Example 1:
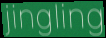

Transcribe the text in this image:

jingling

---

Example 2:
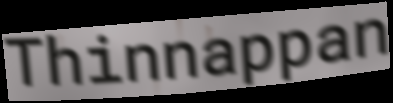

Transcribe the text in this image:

Thinnappan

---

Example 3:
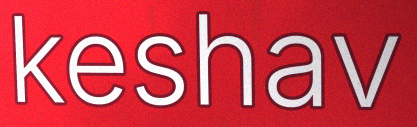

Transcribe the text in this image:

keshav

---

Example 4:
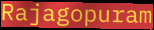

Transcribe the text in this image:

Rajagopuram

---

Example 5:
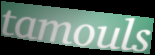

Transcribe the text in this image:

tamouls